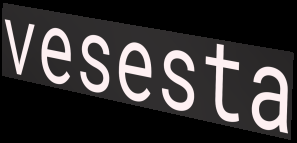
vesesta